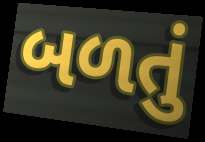
બળતું